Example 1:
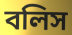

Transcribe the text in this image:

বলিস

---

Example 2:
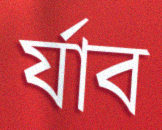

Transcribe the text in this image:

র্যাব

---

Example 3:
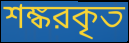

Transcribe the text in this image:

শঙ্করকৃত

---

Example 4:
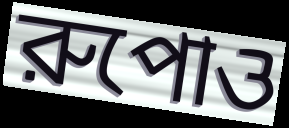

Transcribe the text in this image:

রুপোও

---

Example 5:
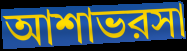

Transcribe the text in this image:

আশাভরসা